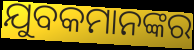
ଯୁବକମାନଙ୍କର